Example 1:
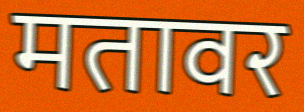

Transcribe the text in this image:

मतावर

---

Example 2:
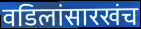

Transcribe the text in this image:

वडिलांसारखंच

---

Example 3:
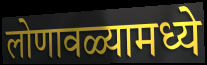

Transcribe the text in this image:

लोणावळ्यामध्ये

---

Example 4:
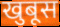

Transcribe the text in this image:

खुबूस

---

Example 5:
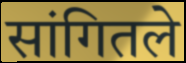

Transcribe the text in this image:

सांगितले